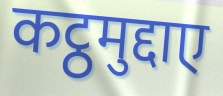
कट्ठमुद्दाए